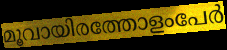
മൂവായിരത്തോളംപേർ